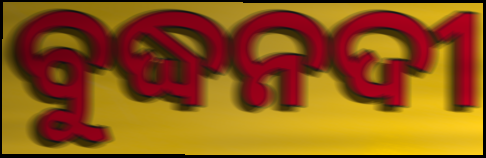
ବୁଦ୍ଧନଦୀ